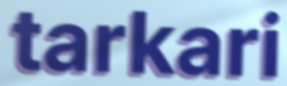
tarkari